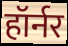
हॉर्नर